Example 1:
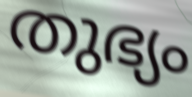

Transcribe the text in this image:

തുഭ്യം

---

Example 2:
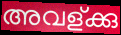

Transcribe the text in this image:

അവള്ക്കു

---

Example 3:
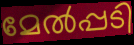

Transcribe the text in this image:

മേൽപ്പടി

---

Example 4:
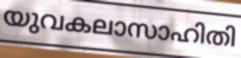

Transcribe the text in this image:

യുവകലാസാഹിതി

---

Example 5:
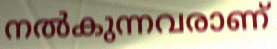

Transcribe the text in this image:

നൽകുന്നവരാണ്